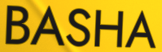
BASHA